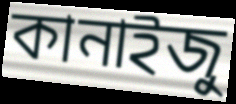
কানাইজু